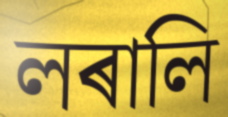
লৰালি